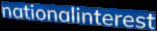
nationalinterest